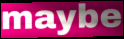
maybe